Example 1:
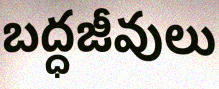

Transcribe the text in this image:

బద్ధజీవులు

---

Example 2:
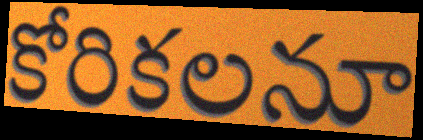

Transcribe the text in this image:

కోరికలనూ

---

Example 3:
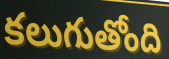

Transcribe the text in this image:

కలుగుతోంది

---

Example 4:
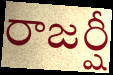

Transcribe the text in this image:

రాజర్షీ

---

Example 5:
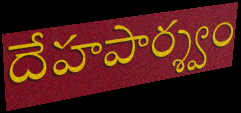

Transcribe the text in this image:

దేహపార్శ్వం